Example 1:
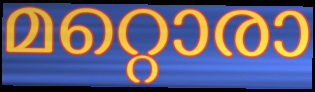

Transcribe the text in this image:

മറ്റൊരാ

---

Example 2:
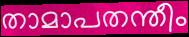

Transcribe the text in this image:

താമാപതന്തീം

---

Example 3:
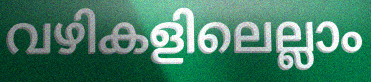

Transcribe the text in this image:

വഴികളിലെല്ലാം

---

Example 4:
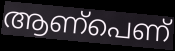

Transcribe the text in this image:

ആണ്പെണ്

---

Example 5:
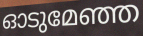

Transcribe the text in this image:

ഓടുമേഞ്ഞ